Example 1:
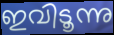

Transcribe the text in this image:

ഇവിടൂന്നു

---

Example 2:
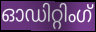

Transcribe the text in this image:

ഓഡിറ്റിംഗ്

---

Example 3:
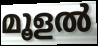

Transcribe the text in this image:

മൂളൽ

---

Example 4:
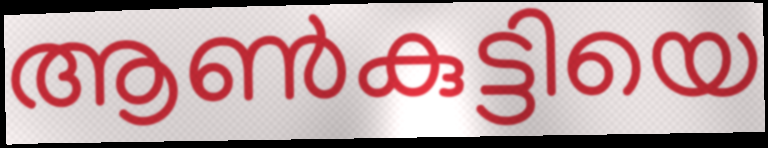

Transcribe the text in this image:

ആൺകുട്ടിയെ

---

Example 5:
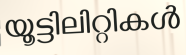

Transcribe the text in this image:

യൂട്ടിലിറ്റികൾ